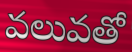
వలువతో